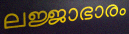
ലജ്ജാഭാരം